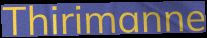
Thirimanne